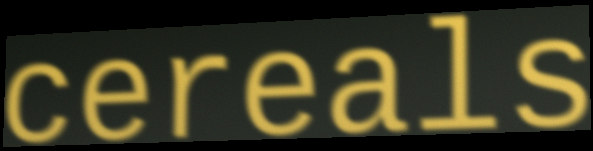
cereals